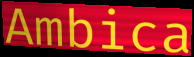
Ambica